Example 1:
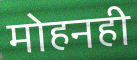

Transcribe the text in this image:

मोहनही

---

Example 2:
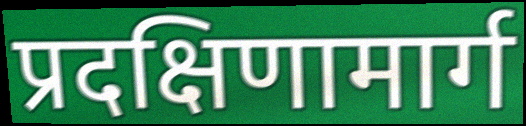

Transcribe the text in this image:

प्रदक्षिणामार्ग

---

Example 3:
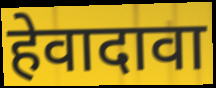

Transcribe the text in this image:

हेवादावा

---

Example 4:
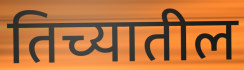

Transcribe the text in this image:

तिच्यातील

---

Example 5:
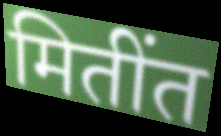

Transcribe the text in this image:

मितींत